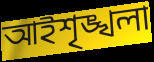
আইশৃঙ্খলা